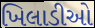
ખિલાડીઓ